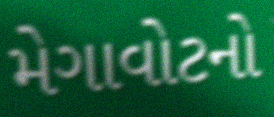
મેગાવોટનો